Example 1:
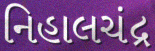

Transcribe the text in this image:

નિહાલચંદ્ર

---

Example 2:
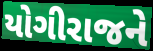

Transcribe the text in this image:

યોગીરાજને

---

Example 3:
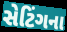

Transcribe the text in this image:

સેટિંગના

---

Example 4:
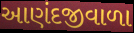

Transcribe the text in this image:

આણંદજીવાળા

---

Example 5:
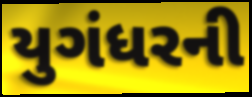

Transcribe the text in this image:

યુગંધરની